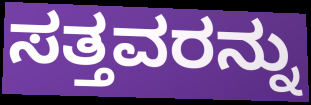
ಸತ್ತವರನ್ನು